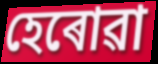
হেৰোৱা